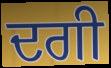
ਦਗੀ